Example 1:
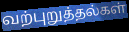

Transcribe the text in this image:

வற்புறுத்தல்கள்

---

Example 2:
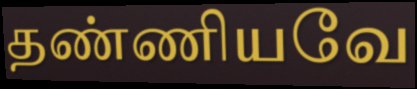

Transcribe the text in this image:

தண்ணியவே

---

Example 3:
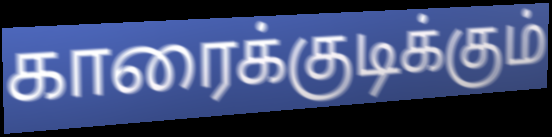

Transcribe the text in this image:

காரைக்குடிக்கும்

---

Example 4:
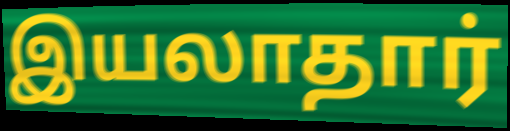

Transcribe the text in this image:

இயலாதார்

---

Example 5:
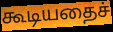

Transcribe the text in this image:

கூடியதைச்